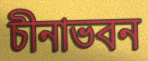
চীনাভবন